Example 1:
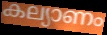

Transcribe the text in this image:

കല്യാണം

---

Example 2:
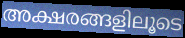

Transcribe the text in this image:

അക്ഷരങ്ങളിലൂടെ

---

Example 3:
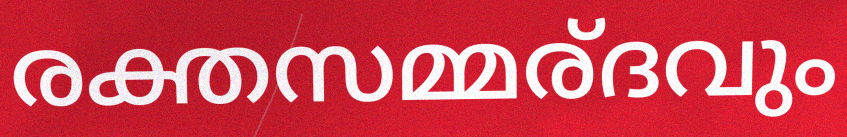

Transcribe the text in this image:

രക്തസമ്മര്ദവും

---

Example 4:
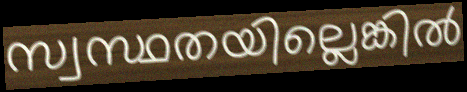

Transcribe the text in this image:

സ്വസ്ഥതയില്ലെങ്കിൽ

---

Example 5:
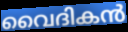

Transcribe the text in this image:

വൈദികൻ